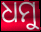
ଧମୁ